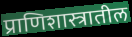
प्राणिशास्त्रातील